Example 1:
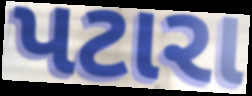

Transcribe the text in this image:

પટારા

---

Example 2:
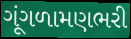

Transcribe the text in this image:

ગૂંગળામણભરી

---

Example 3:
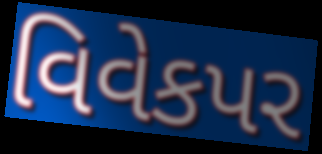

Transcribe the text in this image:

વિવેકપર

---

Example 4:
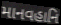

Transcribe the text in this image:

માનવહાનિ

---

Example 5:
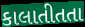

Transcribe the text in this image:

કાલાતીતતા